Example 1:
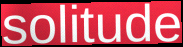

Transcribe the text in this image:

solitude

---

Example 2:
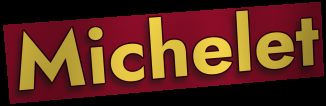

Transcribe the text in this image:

Michelet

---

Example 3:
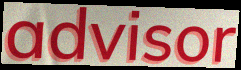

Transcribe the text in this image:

advisor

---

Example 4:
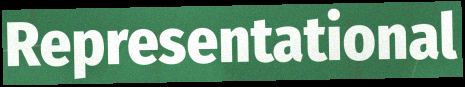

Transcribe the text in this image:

Representational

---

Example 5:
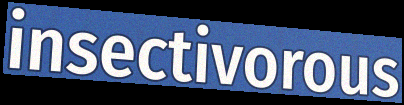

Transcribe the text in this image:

insectivorous